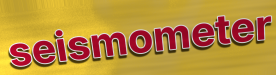
seismometer